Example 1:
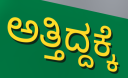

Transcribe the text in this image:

ಅತ್ತಿದ್ದಕ್ಕೆ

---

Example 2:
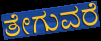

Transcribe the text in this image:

ತೇಗುವರೆ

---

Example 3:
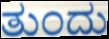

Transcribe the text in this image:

ತುಂದು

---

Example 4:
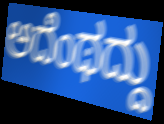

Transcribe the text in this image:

ಅದೆಂಥದ್ದು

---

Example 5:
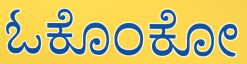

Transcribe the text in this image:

ಓಕೊಂಕೋ